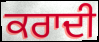
ਕਰਾਦੀ